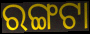
ରଙ୍ଗଟା